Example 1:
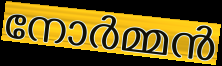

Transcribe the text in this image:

നോർമ്മൻ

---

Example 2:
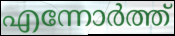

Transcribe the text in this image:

എന്നോർത്ത്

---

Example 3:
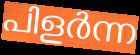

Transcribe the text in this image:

പിളർന്ന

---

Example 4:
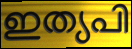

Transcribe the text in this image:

ഇത്യപി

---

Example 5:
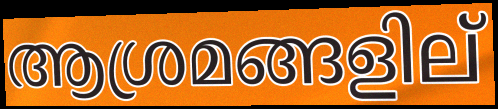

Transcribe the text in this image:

ആശ്രമങ്ങളില്